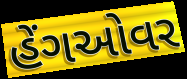
હેંગઓવર